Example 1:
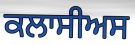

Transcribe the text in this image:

ਕਲਾਸੀਅਸ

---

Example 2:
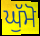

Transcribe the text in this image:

ਘੁੱਮੋ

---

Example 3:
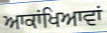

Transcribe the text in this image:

ਆਕਾਂਖਿਆਵਾਂ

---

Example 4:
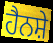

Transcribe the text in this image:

ਹੈਨਸ਼ੇ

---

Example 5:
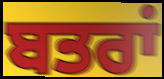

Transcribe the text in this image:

ਬਤਰਾਂ